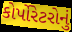
કોર્પોરેટરોનું